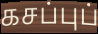
கசப்புப்